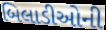
બિલાડીઓની